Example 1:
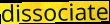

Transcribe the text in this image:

dissociate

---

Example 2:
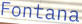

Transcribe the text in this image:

Fontana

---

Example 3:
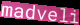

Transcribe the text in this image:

madveli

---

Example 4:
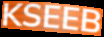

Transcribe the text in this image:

KSEEB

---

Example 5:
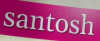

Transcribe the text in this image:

santosh